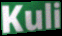
Kuli